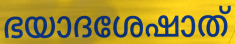
ഭയാദശേഷാത്